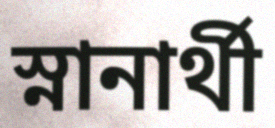
স্নানার্থী